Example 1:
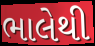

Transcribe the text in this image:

ભાલેથી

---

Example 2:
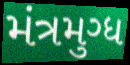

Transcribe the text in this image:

મંત્રમુગ્ધ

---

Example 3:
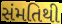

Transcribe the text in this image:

સંમતિથી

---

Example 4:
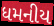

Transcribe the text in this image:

ધમનીય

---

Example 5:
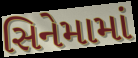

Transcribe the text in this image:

સિનેમામાં